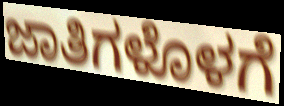
ಜಾತಿಗಳೊಳಗೆ